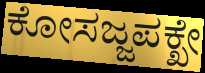
ಕೋಸಜ್ಜಪಕ್ಖೇ